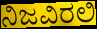
ನಿಜವಿರಲಿ